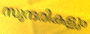
സുന്ദരികളും